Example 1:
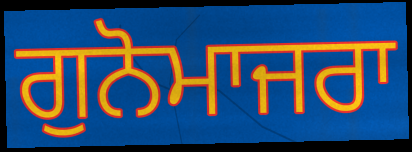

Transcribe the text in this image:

ਗੁਨੋਮਾਜਰਾ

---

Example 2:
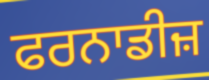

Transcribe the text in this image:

ਫਰਨਾਡੀਜ਼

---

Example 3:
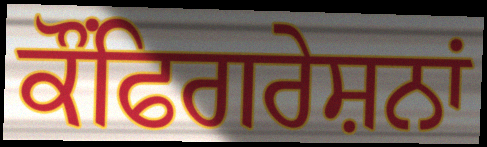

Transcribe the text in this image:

ਕੌਂਫਿਗਰੇਸ਼ਨਾਂ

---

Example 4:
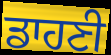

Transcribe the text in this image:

ਡਾਹਣੀ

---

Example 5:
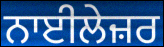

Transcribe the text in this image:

ਨਾਈਲੇਜ਼ਰ